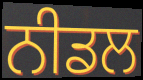
ਨੀਡਲ